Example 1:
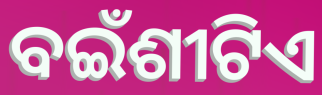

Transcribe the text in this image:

ବଇଁଶୀଟିଏ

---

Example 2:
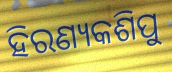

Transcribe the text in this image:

ହିରଣ୍ୟକଶିପୁ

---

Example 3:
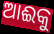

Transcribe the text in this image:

ଆଈକୁ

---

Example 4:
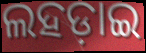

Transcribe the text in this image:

ଲହଡ଼ାଇ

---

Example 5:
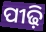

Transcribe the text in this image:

ପୀଢ଼ି